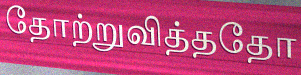
தோற்றுவித்ததோ